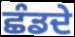
ਛੰਡਦੇ